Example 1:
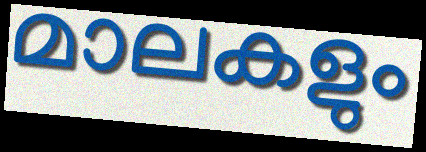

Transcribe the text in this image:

മാലകളും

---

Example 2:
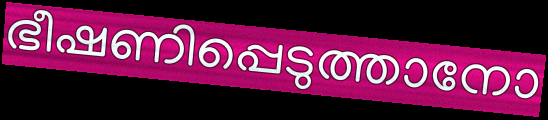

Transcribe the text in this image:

ഭീഷണിപ്പെടുത്താനോ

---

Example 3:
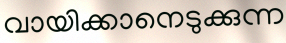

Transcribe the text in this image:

വായിക്കാനെടുക്കുന്ന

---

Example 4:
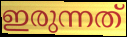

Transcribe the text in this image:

ഇരുന്നത്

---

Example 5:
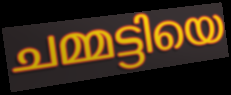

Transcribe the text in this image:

ചമ്മട്ടിയെ